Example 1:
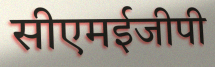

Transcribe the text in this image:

सीएमईजीपी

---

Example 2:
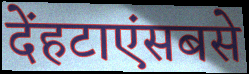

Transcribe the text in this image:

देंहटाएंसबसे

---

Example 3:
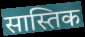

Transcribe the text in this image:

सास्तिक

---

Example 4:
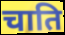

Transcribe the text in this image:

चाति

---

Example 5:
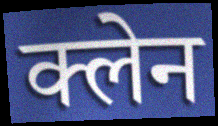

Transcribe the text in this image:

क्लेन